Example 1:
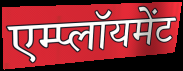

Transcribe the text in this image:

एम्प्लॉयमेंट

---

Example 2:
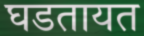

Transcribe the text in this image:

घडतायत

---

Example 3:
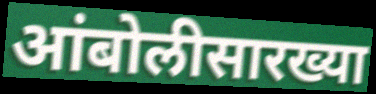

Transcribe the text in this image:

आंबोलीसारख्या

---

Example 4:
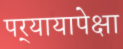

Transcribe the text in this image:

पर्यायापेक्षा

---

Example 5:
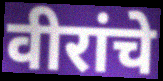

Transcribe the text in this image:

वीरांचे